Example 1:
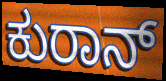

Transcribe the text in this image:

ಕುರಾನ್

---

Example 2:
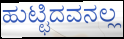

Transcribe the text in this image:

ಹುಟ್ಟಿದವನಲ್ಲ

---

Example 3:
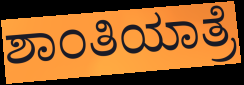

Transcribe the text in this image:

ಶಾಂತಿಯಾತ್ರೆ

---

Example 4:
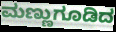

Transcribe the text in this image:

ಮಣ್ಣುಗೂಡಿದ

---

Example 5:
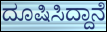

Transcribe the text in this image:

ದೂಷಿಸಿದ್ದಾನೆ